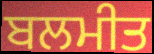
ਬਲਮੀਤ